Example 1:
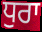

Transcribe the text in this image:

ਧੁਰਾ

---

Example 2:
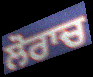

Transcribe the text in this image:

ਲੋਰਾਚ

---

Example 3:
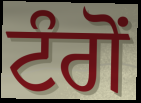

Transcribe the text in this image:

ਟੰਗੋਂ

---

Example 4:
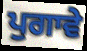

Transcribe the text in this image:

ਪੁਗਾਵੇ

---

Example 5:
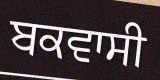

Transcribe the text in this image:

ਬਕਵਾਸੀ